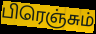
பிரெஞ்சும்